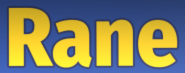
Rane